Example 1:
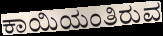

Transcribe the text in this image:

ಕಾಯಿಯಂತಿರುವ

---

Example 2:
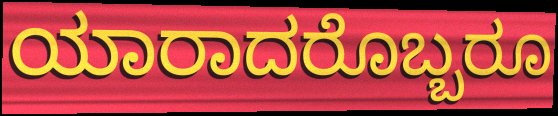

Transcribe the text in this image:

ಯಾರಾದರೊಬ್ಬರೂ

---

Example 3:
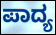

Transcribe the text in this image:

ಪಾದ್ಯ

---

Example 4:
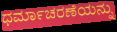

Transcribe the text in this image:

ಧರ್ಮಾಚರಣೆಯನ್ನು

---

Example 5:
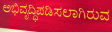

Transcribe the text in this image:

ಅಭಿವೃದ್ಧಿಪಡಿಸಲಾಗಿರುವ